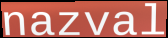
nazval